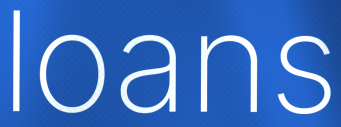
loans